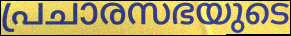
പ്രചാരസഭയുടെ